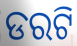
ଡରଟି